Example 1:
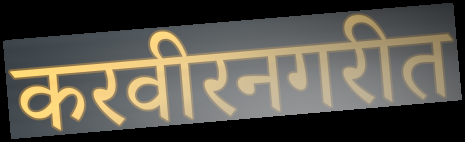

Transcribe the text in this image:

करवीरनगरीत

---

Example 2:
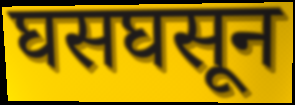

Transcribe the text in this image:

घसघसून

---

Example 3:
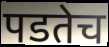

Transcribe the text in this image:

पडतेच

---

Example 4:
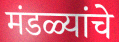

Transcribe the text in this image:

मंडळ्यांचे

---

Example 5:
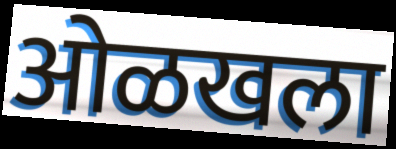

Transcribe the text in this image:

ओळखला